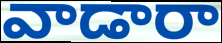
వాడారా